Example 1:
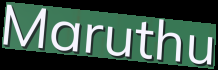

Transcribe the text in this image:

Maruthu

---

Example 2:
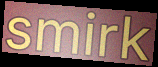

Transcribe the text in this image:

smirk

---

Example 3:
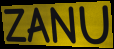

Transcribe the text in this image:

ZANU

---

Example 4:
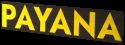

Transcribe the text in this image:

PAYANA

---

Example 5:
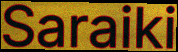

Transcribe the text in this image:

Saraiki